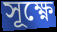
সূক্ষ্ণে